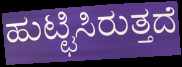
ಹುಟ್ಟಿಸಿರುತ್ತದೆ